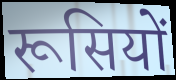
रूसियों